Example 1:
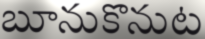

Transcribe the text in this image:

బూనుకొనుట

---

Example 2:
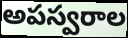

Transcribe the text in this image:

అపస్వరాల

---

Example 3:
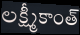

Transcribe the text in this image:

లక్ష్మీకాంత్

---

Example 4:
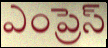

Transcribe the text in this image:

ఎంప్రెస్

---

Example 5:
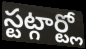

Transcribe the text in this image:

స్టట్గార్ట్లో